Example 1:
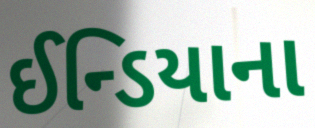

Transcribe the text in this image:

ઈન્ડિયાના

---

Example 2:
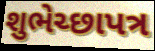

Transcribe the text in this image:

શુભેચ્છાપત્ર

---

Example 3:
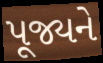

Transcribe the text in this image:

પૂજ્યને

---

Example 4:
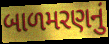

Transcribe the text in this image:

બાળમરણનું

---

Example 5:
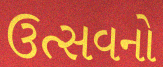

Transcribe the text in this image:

ઉત્સવનો